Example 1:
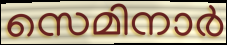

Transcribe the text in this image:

സെമിനാർ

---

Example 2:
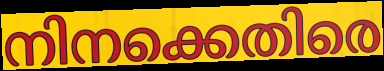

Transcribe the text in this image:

നിനക്കെതിരെ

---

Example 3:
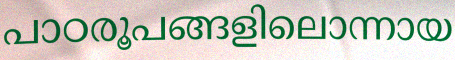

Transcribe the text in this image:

പാഠരൂപങ്ങളിലൊന്നായ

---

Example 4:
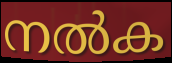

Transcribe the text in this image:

നൽക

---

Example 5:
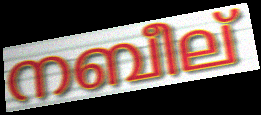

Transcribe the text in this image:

നബീല്